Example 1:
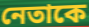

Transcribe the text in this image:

নেতাকে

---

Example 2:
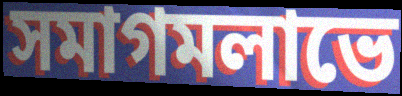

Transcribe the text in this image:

সমাগমলাভে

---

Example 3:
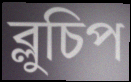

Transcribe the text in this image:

ব্লুচিপ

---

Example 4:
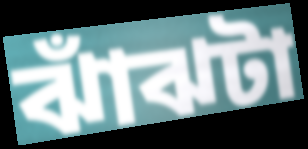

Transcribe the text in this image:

ঝাঁঝটা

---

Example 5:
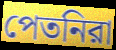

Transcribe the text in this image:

পেতনিরা